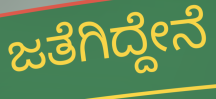
ಜತೆಗಿದ್ದೇನೆ